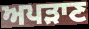
ਅਪੜਾਣ